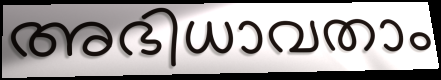
അഭിധാവതാം